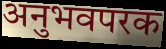
अनुभवपरक